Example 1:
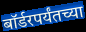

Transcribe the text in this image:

बॉर्डरपर्यंतच्या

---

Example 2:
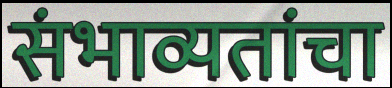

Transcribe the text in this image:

संभाव्यतांचा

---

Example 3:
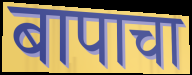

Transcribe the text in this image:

बापाचा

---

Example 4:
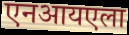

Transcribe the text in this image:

एनआयएला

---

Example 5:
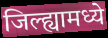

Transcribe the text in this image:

जिल्ह्यामध्ये